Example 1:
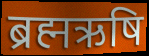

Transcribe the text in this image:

ब्रह्मऋषि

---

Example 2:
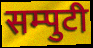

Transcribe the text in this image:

सम्पुटी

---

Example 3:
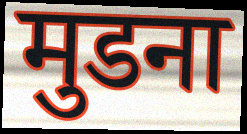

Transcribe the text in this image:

मुडना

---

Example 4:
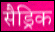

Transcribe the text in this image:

सैड्रिक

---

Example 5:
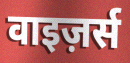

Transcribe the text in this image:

वाइज़र्स